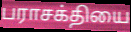
பராசக்தியை